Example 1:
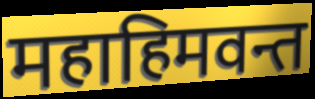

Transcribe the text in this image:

महाहिमवन्त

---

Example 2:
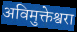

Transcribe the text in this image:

अविमुक्तेश्वरा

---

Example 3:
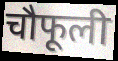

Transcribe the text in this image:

चौफूली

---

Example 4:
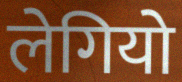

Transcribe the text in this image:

लेगियो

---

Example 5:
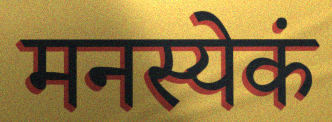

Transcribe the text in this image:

मनस्येकं